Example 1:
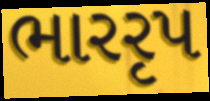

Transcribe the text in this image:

ભારરૃપ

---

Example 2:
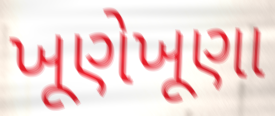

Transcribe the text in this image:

ખૂણેખૂણા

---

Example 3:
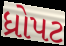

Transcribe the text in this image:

ધ્રોપટ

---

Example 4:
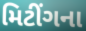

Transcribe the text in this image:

મિટીંગના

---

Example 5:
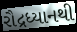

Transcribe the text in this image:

રૌદ્રધ્યાનથી